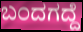
ಬಂದಗದ್ದೆ